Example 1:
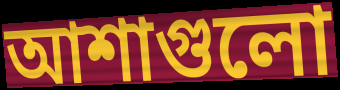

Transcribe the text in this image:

আশাগুলো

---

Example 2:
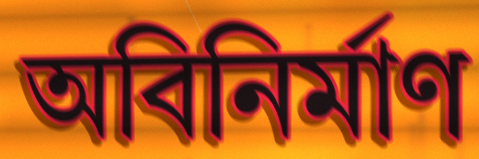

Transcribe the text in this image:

অবিনির্মাণ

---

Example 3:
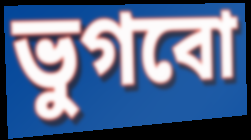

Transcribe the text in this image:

ভুগবো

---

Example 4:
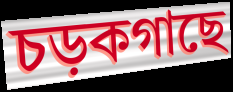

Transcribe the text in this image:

চড়কগাছে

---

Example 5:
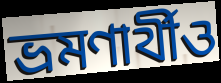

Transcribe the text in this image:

ভ্রমণার্থীও